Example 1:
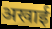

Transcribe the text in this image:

अखाई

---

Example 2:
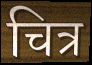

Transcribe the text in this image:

चित्र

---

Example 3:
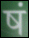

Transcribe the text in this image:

षं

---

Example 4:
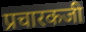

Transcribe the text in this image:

प्रचारकजी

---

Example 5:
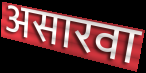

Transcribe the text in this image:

असारवा